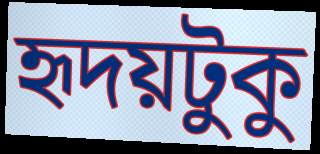
হৃদয়টুকু